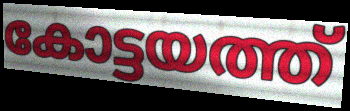
കോട്ടയത്ത്